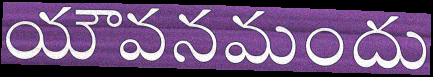
యౌవనమందు